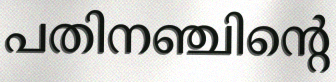
പതിനഞ്ചിന്റെ